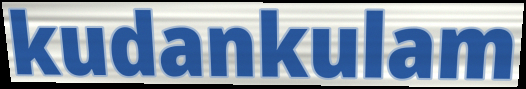
kudankulam